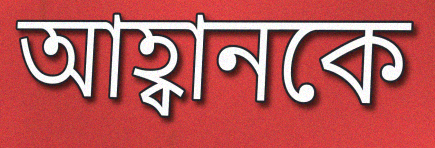
আহ্বানকে